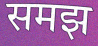
समझ